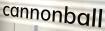
cannonball